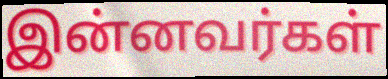
இன்னவர்கள்